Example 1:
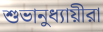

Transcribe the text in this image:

শুভানুধ্যায়ীরা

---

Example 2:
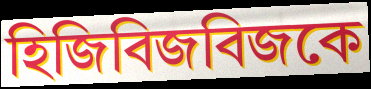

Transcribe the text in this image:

হিজিবিজবিজকে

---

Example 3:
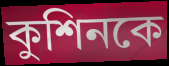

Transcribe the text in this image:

কুশিনকে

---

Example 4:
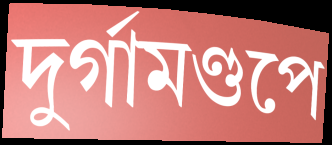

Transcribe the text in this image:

দুর্গামণ্ডপে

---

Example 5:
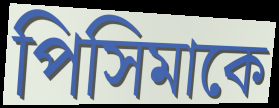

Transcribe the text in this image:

পিসিমাকে